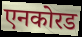
एनकोरड